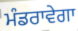
ਮੰਡਰਾਵੇਗਾ